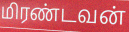
மிரண்டவன்